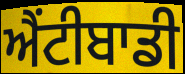
ਐਂਟੀਬਾਡੀ